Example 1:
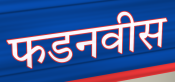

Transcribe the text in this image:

फडनवीस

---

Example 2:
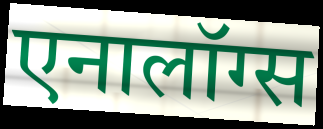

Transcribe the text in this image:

एनालॉग्स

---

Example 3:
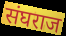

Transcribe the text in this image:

संघराज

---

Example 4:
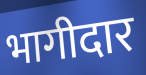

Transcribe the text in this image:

भागीदार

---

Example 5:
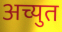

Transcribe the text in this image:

अच्‍युत